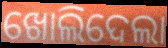
ଖୋଲିଦେଲା